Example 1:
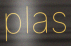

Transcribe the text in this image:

plas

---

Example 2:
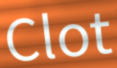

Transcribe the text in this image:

Clot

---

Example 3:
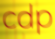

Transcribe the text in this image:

cdp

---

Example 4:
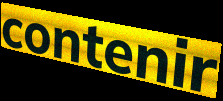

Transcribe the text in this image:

contenir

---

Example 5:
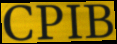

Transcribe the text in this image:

CPIB